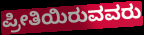
ಪ್ರೀತಿಯಿರುವವರು